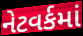
નેટવર્કમાં